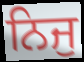
ਨਿਜੁ